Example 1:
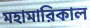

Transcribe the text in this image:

মহামারিকাল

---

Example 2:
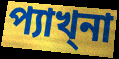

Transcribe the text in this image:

প্যাখ্না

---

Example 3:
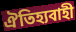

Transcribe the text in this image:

ঐতিহ্যবাহী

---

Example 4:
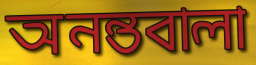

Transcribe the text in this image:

অনন্তবালা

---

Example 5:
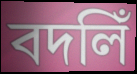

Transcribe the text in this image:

বদলিঁ